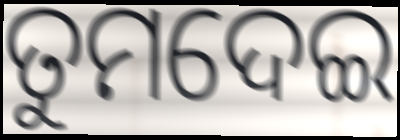
ତୁମଦେଇ